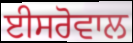
ਈਸਰੋਵਾਲ